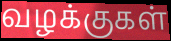
வழக்குகள்